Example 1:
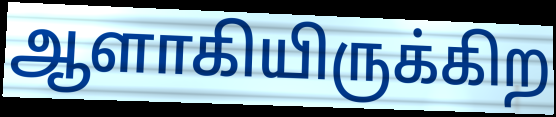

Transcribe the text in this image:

ஆளாகியிருக்கிற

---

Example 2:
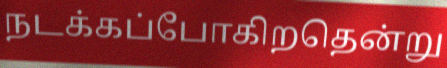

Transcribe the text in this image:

நடக்கப்போகிறதென்று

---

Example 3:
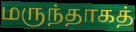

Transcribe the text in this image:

மருந்தாகத்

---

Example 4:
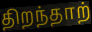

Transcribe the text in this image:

திறந்தாற்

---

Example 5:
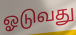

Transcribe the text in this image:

ஓடுவது